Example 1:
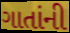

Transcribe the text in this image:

ગાતાંની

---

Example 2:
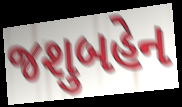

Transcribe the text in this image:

જશુબહેન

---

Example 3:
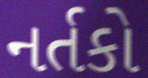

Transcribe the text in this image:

નર્તકો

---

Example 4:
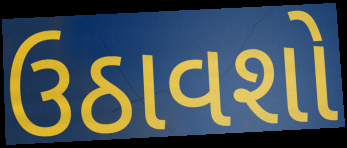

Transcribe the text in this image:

ઉઠાવશો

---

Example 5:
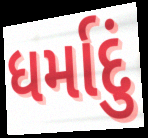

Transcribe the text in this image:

ધર્માદું